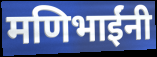
मणिभाईंनी